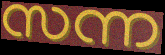
സന്ന